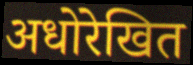
अधोरेखित